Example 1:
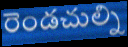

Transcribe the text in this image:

రెండచుల్ని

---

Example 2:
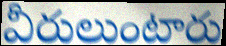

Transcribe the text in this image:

వీరులుంటారు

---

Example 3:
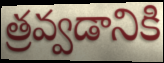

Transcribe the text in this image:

త్రవ్వడానికి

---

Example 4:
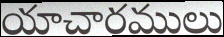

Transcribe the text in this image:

యాచారములు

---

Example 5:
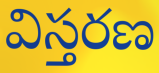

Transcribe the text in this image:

విస్తరణ